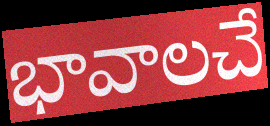
భావాలచే